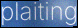
plaiting